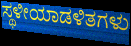
ಸ್ಥಳೀಯಾಡಳಿತಗಳು